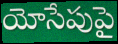
యోసేపుపై